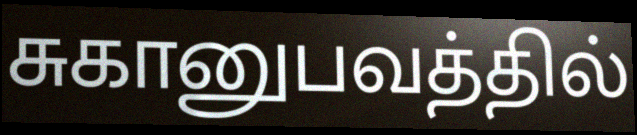
சுகானுபவத்தில்